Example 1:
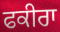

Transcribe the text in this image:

ਫਕੀਰਾ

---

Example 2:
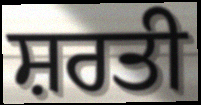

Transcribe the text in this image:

ਸ਼ਰਤੀ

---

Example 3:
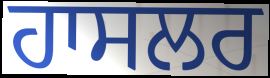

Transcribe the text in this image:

ਹਾਸਲਰ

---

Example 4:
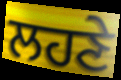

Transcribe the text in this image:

ਲਹਣੇ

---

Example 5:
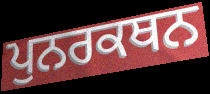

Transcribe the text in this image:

ਪੁਨਰਕਥਨ